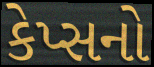
કેપ્સનો